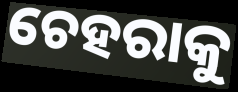
ଚେହରାକୁ